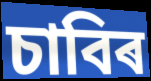
চাবিৰ